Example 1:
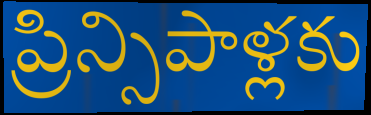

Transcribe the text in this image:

ప్రిన్సిపాళ్లకు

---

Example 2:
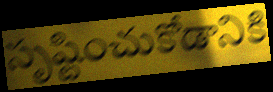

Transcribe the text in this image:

సృష్టించుకోడానికి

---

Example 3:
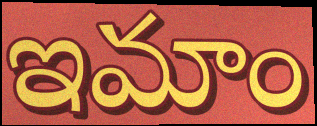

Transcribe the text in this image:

ఇమాం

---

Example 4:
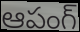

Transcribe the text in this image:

ఆపంగ్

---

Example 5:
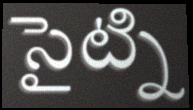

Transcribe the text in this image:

సైట్ని